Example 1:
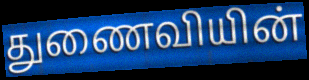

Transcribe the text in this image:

துணைவியின்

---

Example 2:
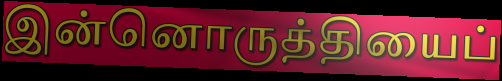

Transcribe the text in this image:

இன்னொருத்தியைப்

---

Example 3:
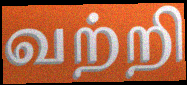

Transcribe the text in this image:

வற்றி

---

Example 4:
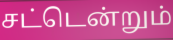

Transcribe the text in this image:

சட்டென்றும்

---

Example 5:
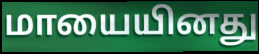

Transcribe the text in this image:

மாயையினது